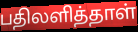
பதிலளித்தாள்